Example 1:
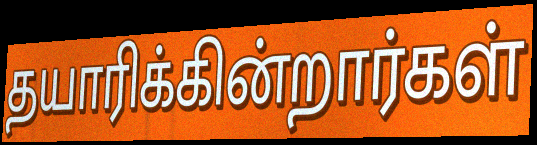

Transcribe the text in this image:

தயாரிக்கின்றார்கள்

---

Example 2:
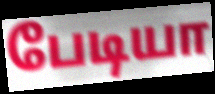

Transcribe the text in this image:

பேடியா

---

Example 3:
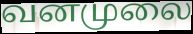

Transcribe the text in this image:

வனமுலை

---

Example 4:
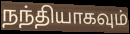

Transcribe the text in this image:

நந்தியாகவும்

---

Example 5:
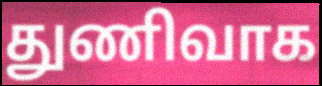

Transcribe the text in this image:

துணிவாக